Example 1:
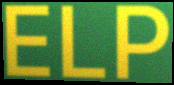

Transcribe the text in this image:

ELP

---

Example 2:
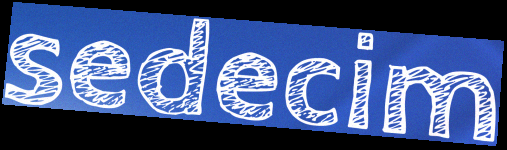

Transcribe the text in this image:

sedecim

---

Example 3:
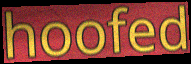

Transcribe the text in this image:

hoofed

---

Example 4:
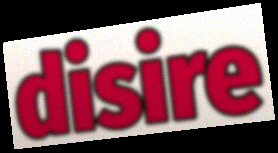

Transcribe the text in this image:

disire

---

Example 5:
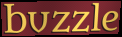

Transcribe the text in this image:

buzzle